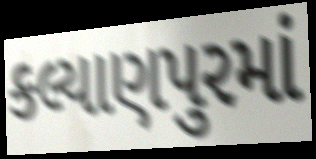
કલ્યાણપુરમાં